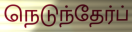
நெடுந்தேர்ப்